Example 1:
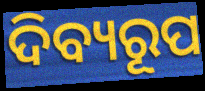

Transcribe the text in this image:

ଦିବ୍ୟରୂପ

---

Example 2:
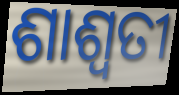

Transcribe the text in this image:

ଶାଶ୍ଵତୀ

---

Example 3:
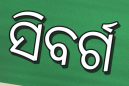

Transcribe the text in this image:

ସିବର୍ଗ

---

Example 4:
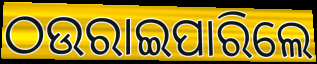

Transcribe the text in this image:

ଠଉରାଇପାରିଲେ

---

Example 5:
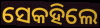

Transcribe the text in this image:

ସେକହିଲେ